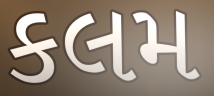
કલમ